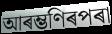
আৰম্ভণিৰপৰা